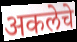
अकलेचे